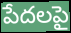
పేదలపై